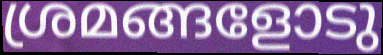
ശ്രമങ്ങളോടു